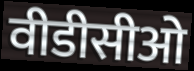
वीडीसीओ